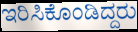
ಇರಿಸಿಕೊಂಡಿದ್ದರು